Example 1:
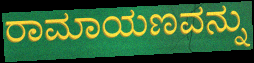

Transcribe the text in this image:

ರಾಮಾಯಣವನ್ನು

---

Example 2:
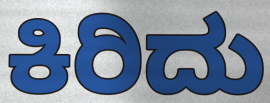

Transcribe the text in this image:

ಕಿರಿದು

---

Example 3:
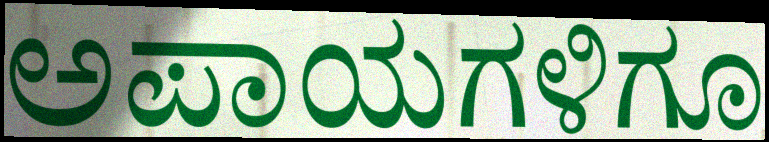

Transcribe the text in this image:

ಅಪಾಯಗಳಿಗೂ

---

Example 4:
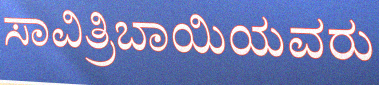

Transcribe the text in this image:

ಸಾವಿತ್ರಿಬಾಯಿಯವರು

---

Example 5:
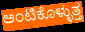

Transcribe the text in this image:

ಅಂಟಿಕೊಳ್ಳುತ್ತ